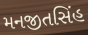
મનજીતસિંહ